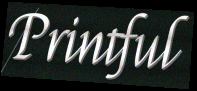
Printful